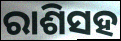
ରାଶିସହ